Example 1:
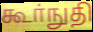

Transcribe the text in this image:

கூர்நுதி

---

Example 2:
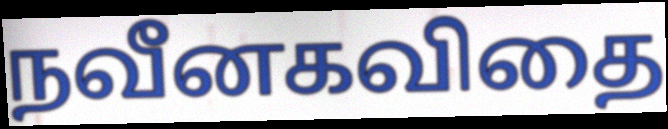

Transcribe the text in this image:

நவீனகவிதை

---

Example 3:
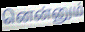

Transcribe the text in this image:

னென்னும்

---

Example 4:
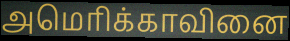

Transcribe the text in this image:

அமெரிக்காவினை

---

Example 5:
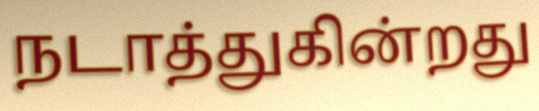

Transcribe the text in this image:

நடாத்துகின்றது